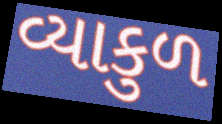
વ્યાકુળ